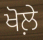
ਖੋਲ਼ੇ